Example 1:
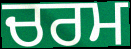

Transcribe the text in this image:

ਚਰਮ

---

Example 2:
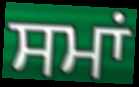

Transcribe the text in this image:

ਸਮਾਂ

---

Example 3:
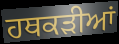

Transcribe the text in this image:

ਹਥਕੜੀਆਂ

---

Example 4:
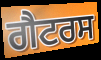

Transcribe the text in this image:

ਗੈਟਰਸ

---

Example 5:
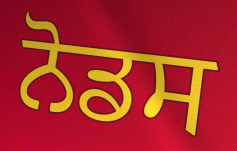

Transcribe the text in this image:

ਨੋਡਸ